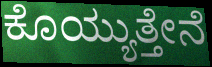
ಕೊಯ್ಯುತ್ತೇನೆ